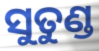
ସୁତୁଣ୍ଡ